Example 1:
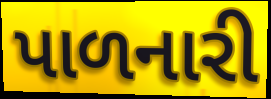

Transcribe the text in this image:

પાળનારી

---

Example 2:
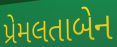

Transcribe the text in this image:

પ્રેમલતાબેન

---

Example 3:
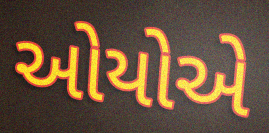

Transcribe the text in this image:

ઓયોએ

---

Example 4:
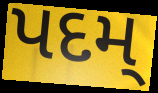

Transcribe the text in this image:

પદમ્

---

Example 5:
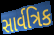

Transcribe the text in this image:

સાર્વત્રિક